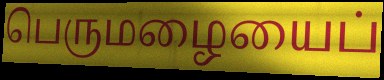
பெருமழையைப்